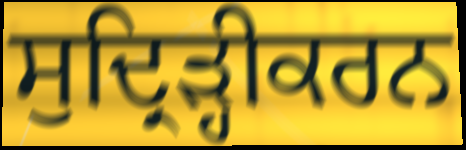
ਸੁਦ੍ਰਿੜ੍ਹੀਕਰਨ